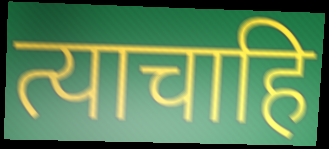
त्याचाहि